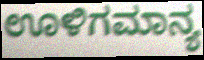
ಊಳಿಗಮಾನ್ಯ